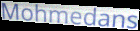
Mohmedans